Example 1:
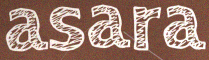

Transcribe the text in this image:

asara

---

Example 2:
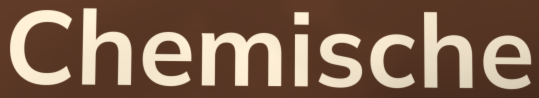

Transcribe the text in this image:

Chemische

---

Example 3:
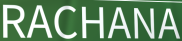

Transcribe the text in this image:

RACHANA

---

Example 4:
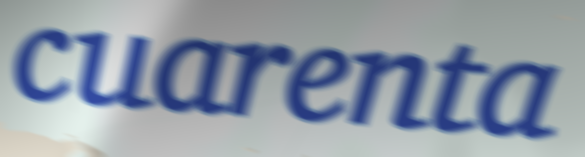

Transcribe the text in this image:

cuarenta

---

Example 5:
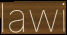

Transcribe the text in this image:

lawi